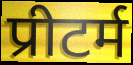
प्रीटर्म